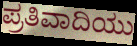
ಪ್ರತಿವಾದಿಯು